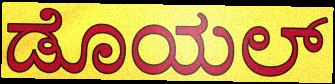
ಡೊಯಲ್